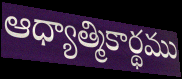
ఆధ్యాత్మికార్థము